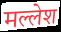
मल्लेश